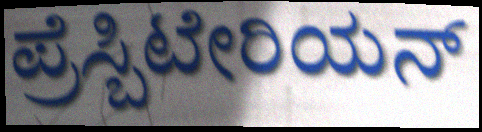
ಪ್ರೆಸ್ಬಿಟೇರಿಯನ್